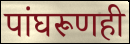
पांघरूणही